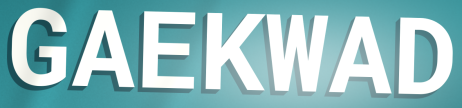
GAEKWAD